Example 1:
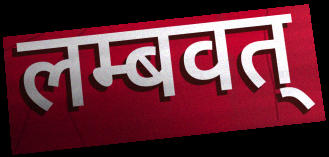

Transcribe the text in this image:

लम्बवत्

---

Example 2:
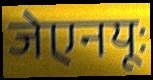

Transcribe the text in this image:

जेएनयूः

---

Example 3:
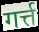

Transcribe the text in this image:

गर्त्त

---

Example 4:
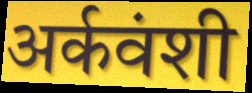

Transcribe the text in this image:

अर्कवंशी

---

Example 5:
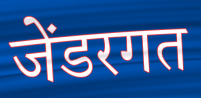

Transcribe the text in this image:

जेंडरगत